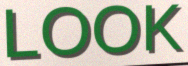
LOOK